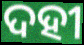
ଦହୀ